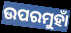
ଉପରମୁହାଁ